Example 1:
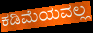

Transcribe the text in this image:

ಕಡಿಮೆಯವಲ್ಲ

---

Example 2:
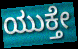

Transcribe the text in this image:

ಯುಕ್ತೇ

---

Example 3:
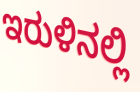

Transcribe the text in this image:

ಇರುಳಿನಲ್ಲಿ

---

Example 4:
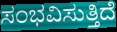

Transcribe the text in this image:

ಸಂಭವಿಸುತ್ತಿದೆ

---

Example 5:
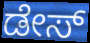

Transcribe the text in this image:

ಡೇಸ್